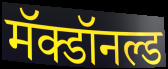
मॅक्डॉनल्ड